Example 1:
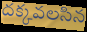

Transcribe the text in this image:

దక్కవలసిన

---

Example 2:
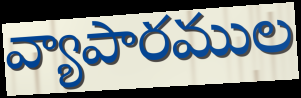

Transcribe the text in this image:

వ్యాపారముల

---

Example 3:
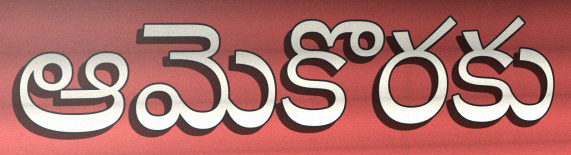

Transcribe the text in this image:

ఆమెకొరకు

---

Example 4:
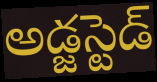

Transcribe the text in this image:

అడ్జస్టెడ్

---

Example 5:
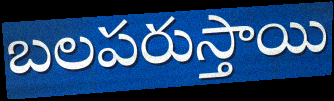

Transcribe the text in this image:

బలపరుస్తాయి